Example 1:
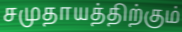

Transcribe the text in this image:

சமுதாயத்திற்கும்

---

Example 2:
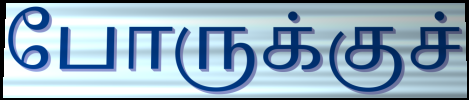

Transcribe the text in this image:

போருக்குச்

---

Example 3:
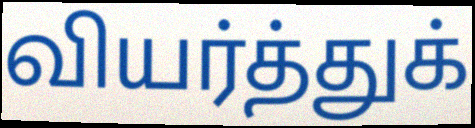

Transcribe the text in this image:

வியர்த்துக்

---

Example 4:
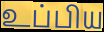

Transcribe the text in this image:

உப்பிய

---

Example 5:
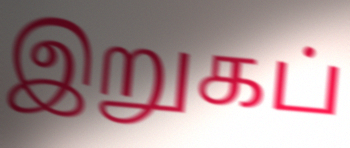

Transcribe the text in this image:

இறுகப்